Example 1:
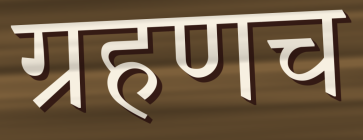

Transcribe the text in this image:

ग्रहणच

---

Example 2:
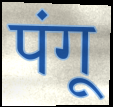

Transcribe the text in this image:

पंगू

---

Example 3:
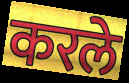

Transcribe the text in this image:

करले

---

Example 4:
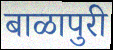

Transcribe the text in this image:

बाळापुरी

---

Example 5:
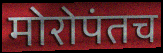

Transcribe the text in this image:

मोरोपंतच